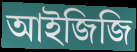
আইজিজি